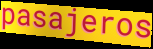
pasajeros